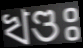
খণ্ডঃ